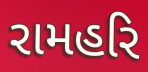
રામહરિ